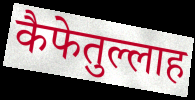
कैफेतुल्लाह